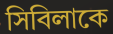
সিবিলাকে